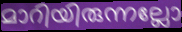
മാറിയിരുന്നല്ലോ